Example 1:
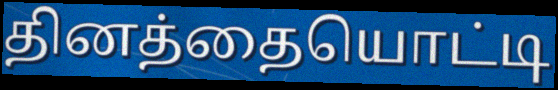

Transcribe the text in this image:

தினத்தையொட்டி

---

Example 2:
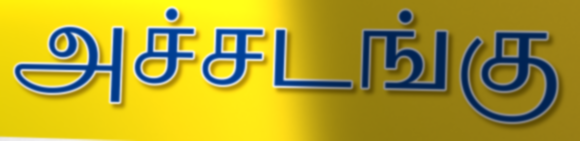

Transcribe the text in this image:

அச்சடங்கு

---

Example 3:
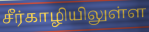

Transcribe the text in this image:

சீர்காழியிலுள்ள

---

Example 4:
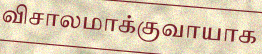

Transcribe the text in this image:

விசாலமாக்குவாயாக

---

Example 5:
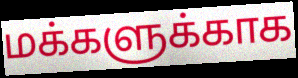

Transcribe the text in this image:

மக்களுக்காக